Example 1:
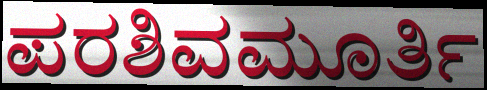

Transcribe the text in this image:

ಪರಶಿವಮೂರ್ತಿ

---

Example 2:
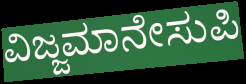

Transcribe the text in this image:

ವಿಜ್ಜಮಾನೇಸುಪಿ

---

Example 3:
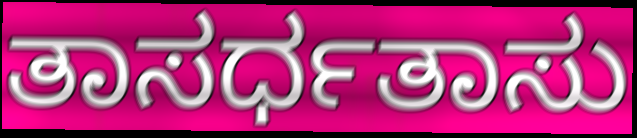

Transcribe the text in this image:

ತಾಸರ್ಧತಾಸು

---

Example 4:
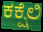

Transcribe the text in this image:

ಕಕ್ಷೆಲಿ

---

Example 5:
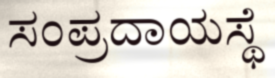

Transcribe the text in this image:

ಸಂಪ್ರದಾಯಸ್ಥೆ